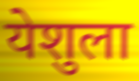
येशुला